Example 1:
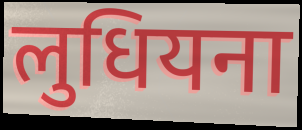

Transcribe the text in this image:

लुधियना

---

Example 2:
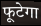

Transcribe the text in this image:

फूटेगा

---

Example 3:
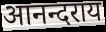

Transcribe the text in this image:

आनन्दराय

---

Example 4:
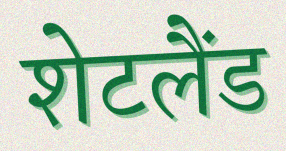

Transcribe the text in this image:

शेटलैंड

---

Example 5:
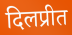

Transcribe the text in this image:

दिलप्रीत